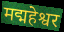
मद्महेश्वर